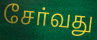
சேர்வது